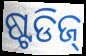
ଷ୍ଟଡିଜ୍